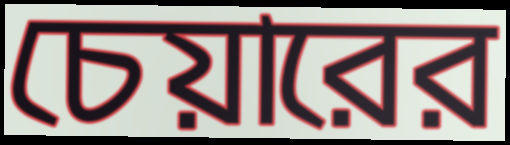
চেয়ারের